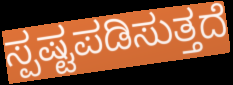
ಸ್ಪಷ್ಟಪಡಿಸುತ್ತದೆ